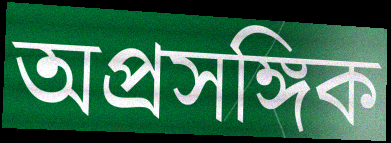
অপ্রসঙ্গিক